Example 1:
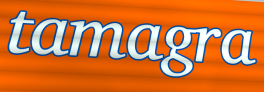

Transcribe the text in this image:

tamagra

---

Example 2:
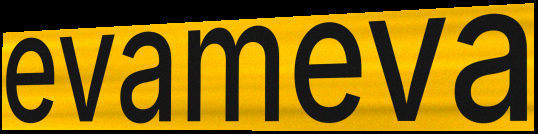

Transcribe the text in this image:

evameva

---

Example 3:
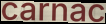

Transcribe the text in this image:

carnac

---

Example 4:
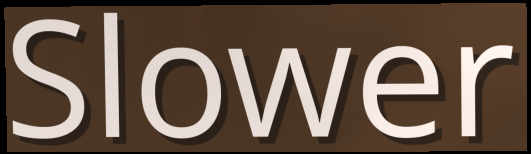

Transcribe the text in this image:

Slower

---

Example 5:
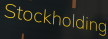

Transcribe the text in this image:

Stockholding